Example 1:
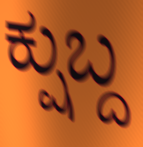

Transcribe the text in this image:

ಕ್ಷುಬ್ದ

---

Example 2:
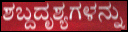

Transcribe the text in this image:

ಶಬ್ದದೃಶ್ಯಗಳನ್ನು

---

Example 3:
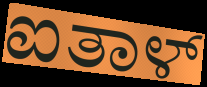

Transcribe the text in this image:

ಐತಾಳ್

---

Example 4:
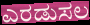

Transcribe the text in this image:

ಎರಡುಸಲ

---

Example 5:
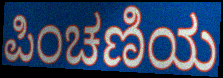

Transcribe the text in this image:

ಪಿಂಚಣಿಯ